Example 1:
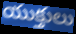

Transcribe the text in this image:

యుక్తులు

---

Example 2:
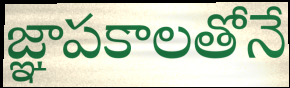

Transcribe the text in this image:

జ్ఞాపకాలతోనే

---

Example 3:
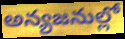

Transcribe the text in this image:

అన్యజనుల్లో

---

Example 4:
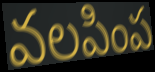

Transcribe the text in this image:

వలపింప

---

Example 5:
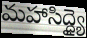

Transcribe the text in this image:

మహాసిద్ధ్యై